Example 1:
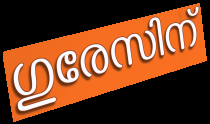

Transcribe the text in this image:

ഗുരേസിന്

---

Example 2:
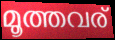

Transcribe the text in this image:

മൂത്തവര്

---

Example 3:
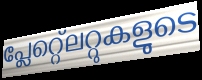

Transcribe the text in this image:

പ്ലേറ്റ്ലെറ്റുകളുടെ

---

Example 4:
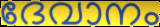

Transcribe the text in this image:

ദേവാനം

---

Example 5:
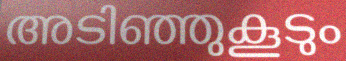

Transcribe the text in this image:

അടിഞ്ഞുകൂടും